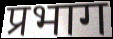
प्रभाग